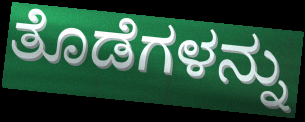
ತೊಡೆಗಳನ್ನು